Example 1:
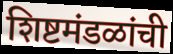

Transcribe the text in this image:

शिष्टमंडळांची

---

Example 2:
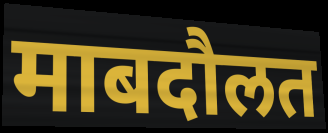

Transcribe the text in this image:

माबदौलत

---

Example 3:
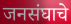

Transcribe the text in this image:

जनसंघाचे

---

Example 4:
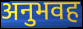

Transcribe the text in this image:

अनुभवह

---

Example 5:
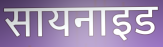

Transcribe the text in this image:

सायनाइड